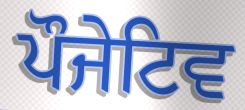
ਪੌਜੇਟਿਵ